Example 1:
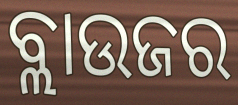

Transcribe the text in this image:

ବ୍ଲାଉଜର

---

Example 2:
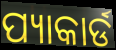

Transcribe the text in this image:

ପ୍ୟାକାର୍ଡ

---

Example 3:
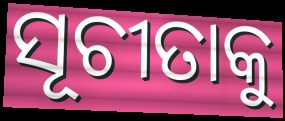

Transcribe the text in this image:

ସୂଚୀତାକୁ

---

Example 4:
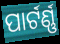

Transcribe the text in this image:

ପାର୍ଟର୍ଣ୍ଣ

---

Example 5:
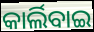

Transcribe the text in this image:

କାର୍ଲିବାଇ